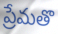
ప్రేమతొ